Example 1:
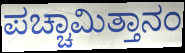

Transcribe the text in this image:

ಪಚ್ಚಾಮಿತ್ತಾನಂ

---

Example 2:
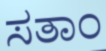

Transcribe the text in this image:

ಸತಾಂ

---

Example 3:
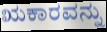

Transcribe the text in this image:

ಋಕಾರವನ್ನು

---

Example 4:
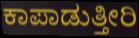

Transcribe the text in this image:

ಕಾಪಾಡುತ್ತೀರಿ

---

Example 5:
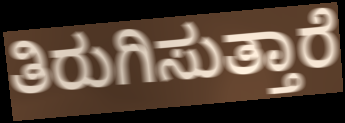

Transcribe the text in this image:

ತಿರುಗಿಸುತ್ತಾರೆ